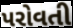
પરોવતી